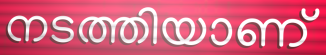
നടത്തിയാണ്